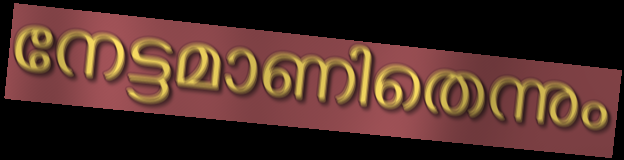
നേട്ടമാണിതെന്നും